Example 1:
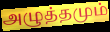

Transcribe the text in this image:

அழுத்தமும்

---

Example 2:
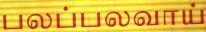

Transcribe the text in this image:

பலப்பலவாய்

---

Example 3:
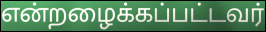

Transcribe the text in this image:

என்றழைக்கப்பட்டவர்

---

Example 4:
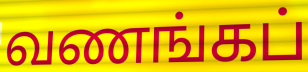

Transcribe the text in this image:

வணங்கப்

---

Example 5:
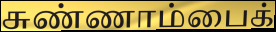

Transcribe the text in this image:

சுண்ணாம்பைக்